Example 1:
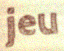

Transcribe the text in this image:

jeu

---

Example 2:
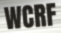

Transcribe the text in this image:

WCRF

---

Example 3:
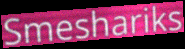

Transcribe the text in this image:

Smeshariks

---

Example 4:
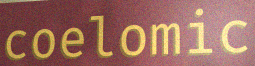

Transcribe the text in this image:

coelomic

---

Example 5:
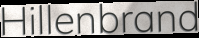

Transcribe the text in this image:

Hillenbrand